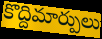
కొద్దిమార్పులు